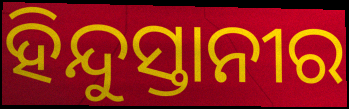
ହିନ୍ଦୁସ୍ତାନୀର